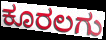
ಕೂರಲಗು